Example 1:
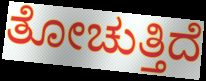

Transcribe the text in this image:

ತೋಚುತ್ತಿದೆ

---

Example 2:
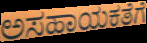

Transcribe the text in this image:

ಅಸಹಾಯಕತೆಗೆ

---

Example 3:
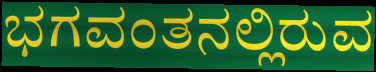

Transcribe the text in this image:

ಭಗವಂತನಲ್ಲಿರುವ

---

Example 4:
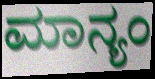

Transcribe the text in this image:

ಮಾನ್ಯಂ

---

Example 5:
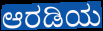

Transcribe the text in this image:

ಆರಡಿಯ